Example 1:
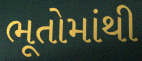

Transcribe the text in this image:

ભૂતોમાંથી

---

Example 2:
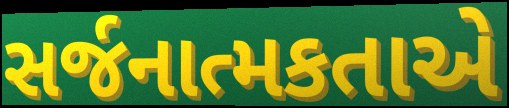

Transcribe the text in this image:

સર્જનાત્મકતાએ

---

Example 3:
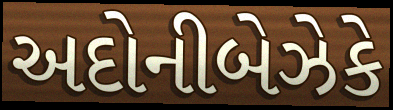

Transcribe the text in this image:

અદોનીબેઝેકે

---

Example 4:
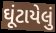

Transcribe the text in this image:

ઘૂંટાયેલું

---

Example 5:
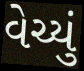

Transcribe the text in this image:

વેચ્યું